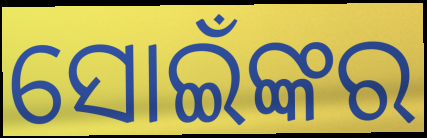
ସୋଇଁଙ୍କର